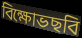
বিক্ষোভছবি